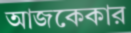
আজকেকার